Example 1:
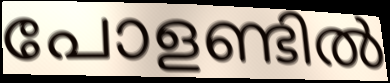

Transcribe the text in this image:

പോളണ്ടിൽ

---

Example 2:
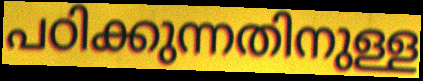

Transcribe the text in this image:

പഠിക്കുന്നതിനുള്ള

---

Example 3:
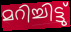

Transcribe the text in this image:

മറിച്ചിട്ടു്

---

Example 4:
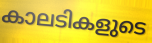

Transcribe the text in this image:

കാലടികളുടെ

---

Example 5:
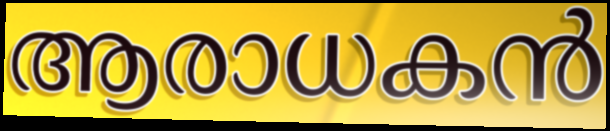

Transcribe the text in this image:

ആരാധകൻ